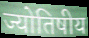
ज्योतिषीय